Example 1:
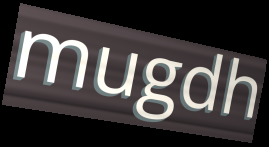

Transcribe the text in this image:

mugdh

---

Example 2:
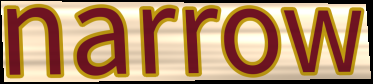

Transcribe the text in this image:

narrow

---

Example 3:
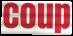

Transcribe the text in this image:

coup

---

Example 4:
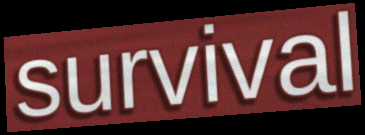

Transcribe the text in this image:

survival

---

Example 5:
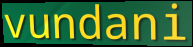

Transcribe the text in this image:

vundani